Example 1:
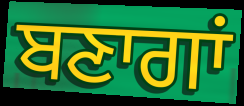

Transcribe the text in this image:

ਬਣਾਗਾਂ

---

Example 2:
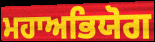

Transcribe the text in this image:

ਮਹਾਅਭਿਯੋਗ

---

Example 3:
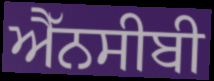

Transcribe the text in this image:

ਐੱਨਸੀਬੀ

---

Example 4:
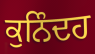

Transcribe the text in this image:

ਕੁਨਿੰਦਹ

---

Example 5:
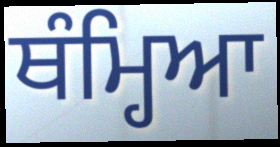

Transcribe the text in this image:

ਥੰਮ੍ਹ੍ਹਿਆ